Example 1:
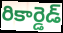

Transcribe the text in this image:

రికార్డెడ్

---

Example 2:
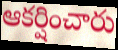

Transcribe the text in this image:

ఆకర్షించారు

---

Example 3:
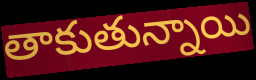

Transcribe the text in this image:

తాకుతున్నాయి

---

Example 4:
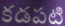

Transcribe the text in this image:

కడపటి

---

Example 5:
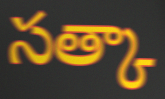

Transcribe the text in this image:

సత్కా